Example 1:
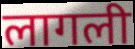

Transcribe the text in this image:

लागली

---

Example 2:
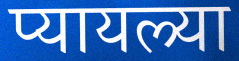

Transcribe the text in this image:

प्यायल्या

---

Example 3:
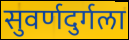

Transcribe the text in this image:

सुवर्णदुर्गला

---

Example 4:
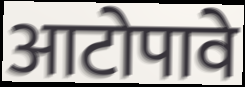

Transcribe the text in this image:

आटोपावे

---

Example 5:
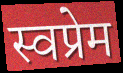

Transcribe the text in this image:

स्वप्रेम